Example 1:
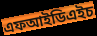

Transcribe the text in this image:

এফআইডিএইচ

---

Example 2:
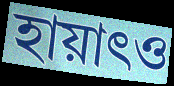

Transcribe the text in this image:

হায়াৎও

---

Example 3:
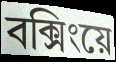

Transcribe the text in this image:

বক্সিংয়ে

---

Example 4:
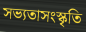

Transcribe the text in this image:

সভ্যতাসংস্কৃতি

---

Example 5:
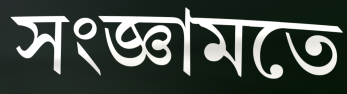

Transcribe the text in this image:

সংজ্ঞামতে